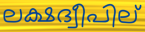
ലക്ഷദ്വീപില്